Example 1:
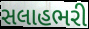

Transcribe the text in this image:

સલાહભરી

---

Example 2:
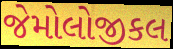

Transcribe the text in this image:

જેમોલોજીકલ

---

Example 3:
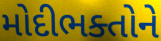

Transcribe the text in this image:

મોદીભક્તોને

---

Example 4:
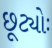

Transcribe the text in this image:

છૂટ્યોઃ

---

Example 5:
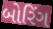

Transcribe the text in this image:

બોરિંગ